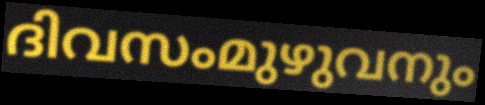
ദിവസംമുഴുവനും